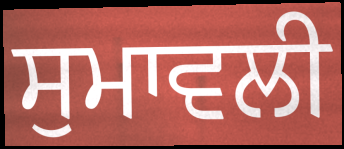
ਸੁਮਾਵਲੀ